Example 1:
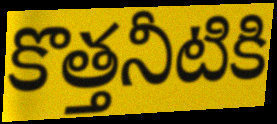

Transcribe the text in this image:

కొత్తనీటికి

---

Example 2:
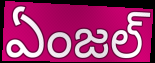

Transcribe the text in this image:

ఏంజల్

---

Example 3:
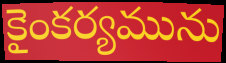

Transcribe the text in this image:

కైంకర్యమును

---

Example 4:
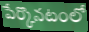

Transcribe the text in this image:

పేర్కొనటంలో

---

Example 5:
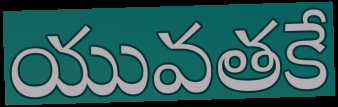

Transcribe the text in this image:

యువతకే